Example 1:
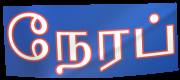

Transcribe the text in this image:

நேரப்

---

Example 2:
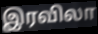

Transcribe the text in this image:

இரவிலா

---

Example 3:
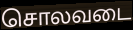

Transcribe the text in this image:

சொலவடை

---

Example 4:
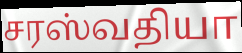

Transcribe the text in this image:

சரஸ்வதியா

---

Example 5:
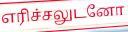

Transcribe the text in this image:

எரிச்சலுடனோ